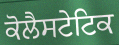
ਕੋਲੈਸਟੇਟਿਕ